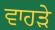
ਵਾਹੜੇ